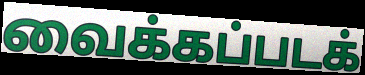
வைக்கப்படக்